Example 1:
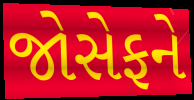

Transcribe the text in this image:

જોસેફને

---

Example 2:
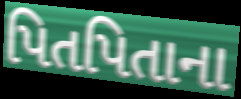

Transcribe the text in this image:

પિતપિતાના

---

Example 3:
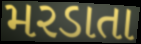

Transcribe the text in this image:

મરડાતા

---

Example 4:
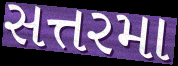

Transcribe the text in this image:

સત્તરમા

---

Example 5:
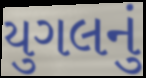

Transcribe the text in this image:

યુગલનું